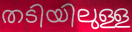
തടിയിലുള്ള